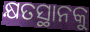
କ୍ଷତସ୍ଥାନକୁ